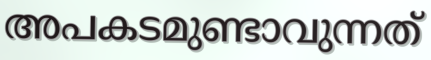
അപകടമുണ്ടാവുന്നത്